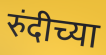
रुंदीच्या